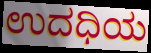
ಉದಧಿಯ